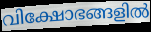
വിക്ഷോഭങ്ങളിൽ